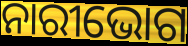
ନାରୀଭୋଗ